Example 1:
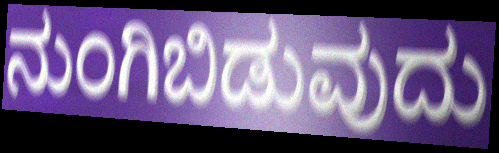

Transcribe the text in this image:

ನುಂಗಿಬಿಡುವುದು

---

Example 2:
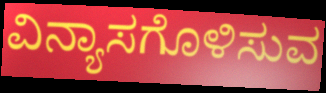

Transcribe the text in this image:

ವಿನ್ಯಾಸಗೊಳಿಸುವ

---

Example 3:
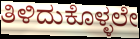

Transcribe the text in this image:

ತಿಳಿದುಕೊಳ್ಳಲೇ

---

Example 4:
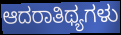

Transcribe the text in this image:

ಆದರಾತಿಥ್ಯಗಳು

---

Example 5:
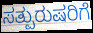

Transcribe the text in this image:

ಸತ್ಪುರುಷರಿಗೆ